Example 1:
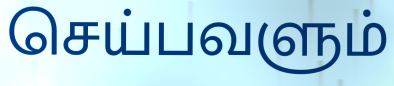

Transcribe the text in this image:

செய்பவளும்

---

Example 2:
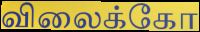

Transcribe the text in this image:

விலைக்கோ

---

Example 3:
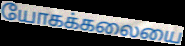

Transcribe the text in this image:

யோகக்கலையை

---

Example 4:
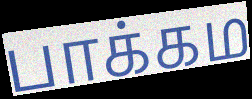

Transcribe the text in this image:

பாக்கம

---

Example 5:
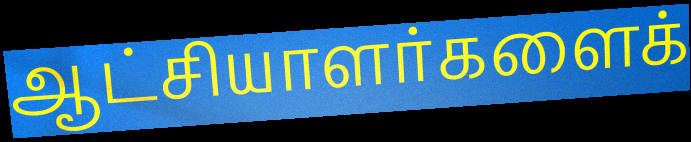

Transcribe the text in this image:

ஆட்சியாளர்களைக்